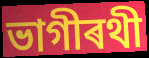
ভাগীৰথী